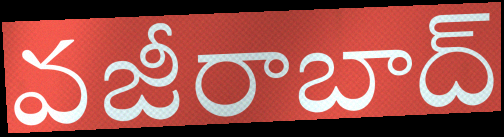
వజీరాబాద్